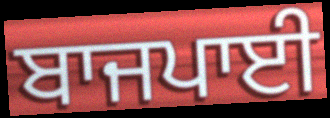
ਬਾਜਪਾਈ